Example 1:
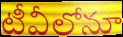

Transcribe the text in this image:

టీవీలోనూ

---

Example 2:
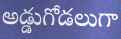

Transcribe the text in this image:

అడ్డుగోడలుగా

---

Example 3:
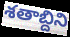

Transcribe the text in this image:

శతాబ్దిని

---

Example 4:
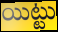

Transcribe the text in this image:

యిట్టు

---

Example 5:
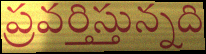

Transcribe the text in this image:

ప్రవర్తిస్తున్నది